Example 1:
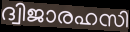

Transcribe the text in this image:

ദ്വിജാരഹസി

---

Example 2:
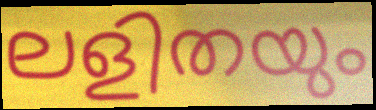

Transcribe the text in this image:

ലളിതയും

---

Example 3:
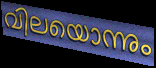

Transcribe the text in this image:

വിലയൊന്നും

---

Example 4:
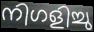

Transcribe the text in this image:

നിഗളിച്ചു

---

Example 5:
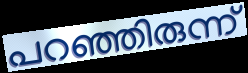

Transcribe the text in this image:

പറഞ്ഞിരുന്ന്